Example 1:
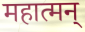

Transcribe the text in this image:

महात्मन्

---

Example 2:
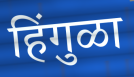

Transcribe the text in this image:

हिंगुळा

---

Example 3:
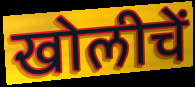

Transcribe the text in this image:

खोलीचें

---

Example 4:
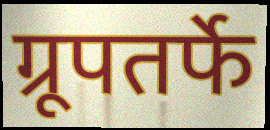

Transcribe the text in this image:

ग्रूपतर्फे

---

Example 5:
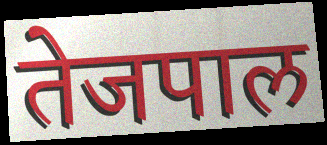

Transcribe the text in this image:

तेजपाल